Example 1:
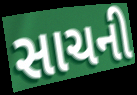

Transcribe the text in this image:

સાચની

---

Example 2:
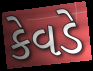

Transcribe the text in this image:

કેવડે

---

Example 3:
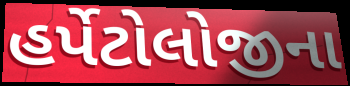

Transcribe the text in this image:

હર્પેટોલોજીના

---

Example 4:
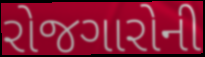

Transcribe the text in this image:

રોજગારોની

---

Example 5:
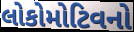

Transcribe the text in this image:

લોકોમોટિવનો